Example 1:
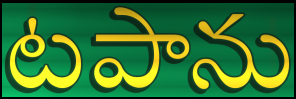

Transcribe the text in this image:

టపాను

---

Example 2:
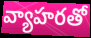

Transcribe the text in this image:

వ్యాహరతో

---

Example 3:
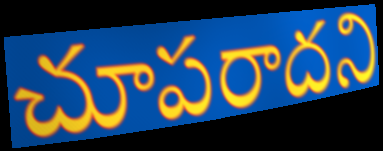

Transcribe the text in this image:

చూపరాదని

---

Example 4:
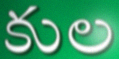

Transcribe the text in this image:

కుల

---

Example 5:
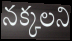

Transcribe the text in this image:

నక్కలని